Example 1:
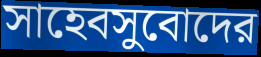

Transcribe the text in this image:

সাহেবসুবোদের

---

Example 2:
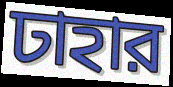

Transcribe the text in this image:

ঢাহার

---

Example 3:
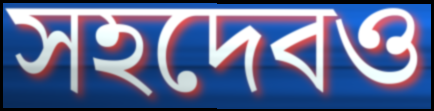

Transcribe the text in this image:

সহদেবও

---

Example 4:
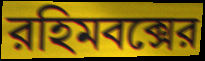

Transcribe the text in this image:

রহিমবক্সের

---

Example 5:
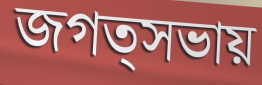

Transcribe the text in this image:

জগত্সভায়